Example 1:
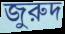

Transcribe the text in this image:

জুরুদ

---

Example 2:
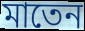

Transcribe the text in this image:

মাতেন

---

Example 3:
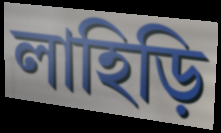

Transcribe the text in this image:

লাহিড়ি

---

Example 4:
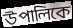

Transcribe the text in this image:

উপালিকে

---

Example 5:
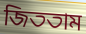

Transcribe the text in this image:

জিততাম